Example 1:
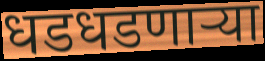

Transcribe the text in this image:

धडधडणाऱ्या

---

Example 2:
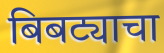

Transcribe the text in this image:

बिबट्याचा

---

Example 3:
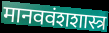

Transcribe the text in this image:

मानववंशशास्त्र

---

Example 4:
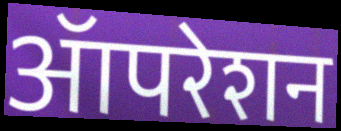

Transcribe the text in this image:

ॲापरेशन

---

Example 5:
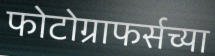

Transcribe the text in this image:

फोटोग्राफर्सच्या